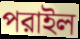
পরাইল